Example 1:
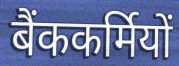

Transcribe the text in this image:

बैंककर्मियों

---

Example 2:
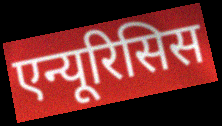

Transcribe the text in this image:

एन्यूरिसिस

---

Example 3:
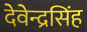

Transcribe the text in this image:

देवेन्द्रसिंह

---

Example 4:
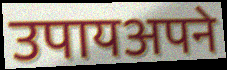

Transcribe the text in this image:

उपायअपने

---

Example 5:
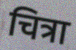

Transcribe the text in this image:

चित्रा